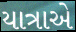
યાત્રાએ